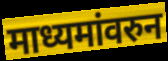
माध्यमांवरुन